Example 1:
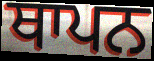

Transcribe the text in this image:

ਥਾਪਨ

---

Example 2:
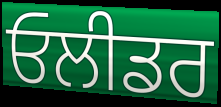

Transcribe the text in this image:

ਓਲੀਡਰ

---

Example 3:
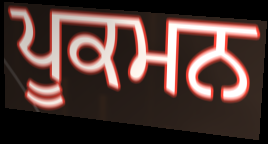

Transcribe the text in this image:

ਪੂਕਮਨ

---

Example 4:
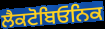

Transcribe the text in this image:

ਲੈਕਟੋਬਿਓਨਿਕ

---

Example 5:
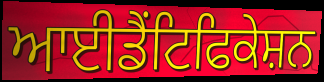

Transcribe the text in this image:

ਆਈਡੈਂਟਿਫਿਕੇਸ਼ਨ